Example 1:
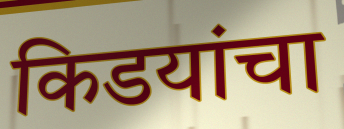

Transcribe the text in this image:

किडयांचा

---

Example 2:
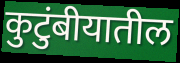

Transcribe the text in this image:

कुटुंबीयातील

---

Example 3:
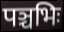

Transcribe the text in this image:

पञ्चभिः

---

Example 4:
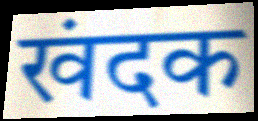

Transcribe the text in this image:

खंदक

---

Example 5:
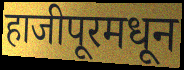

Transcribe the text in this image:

हाजीपूरमधून